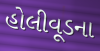
હોલીવૂડના